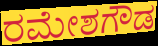
ರಮೇಶಗೌಡ